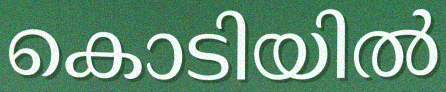
കൊടിയിൽ